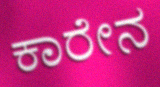
ಕಾರೇನ